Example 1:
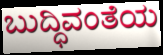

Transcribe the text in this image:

ಬುದ್ಧಿವಂತೆಯ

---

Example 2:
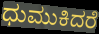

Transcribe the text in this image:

ಧುಮುಕಿದರೆ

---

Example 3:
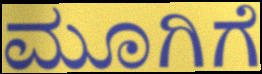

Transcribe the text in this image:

ಮೂಗಿಗೆ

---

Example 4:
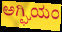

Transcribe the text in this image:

ಅಗ್ಘಿಯಂ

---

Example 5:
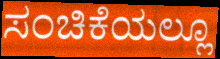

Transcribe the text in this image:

ಸಂಚಿಕೆಯಲ್ಲೂ